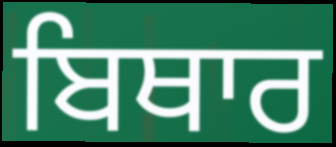
ਬਿਥਾਰ